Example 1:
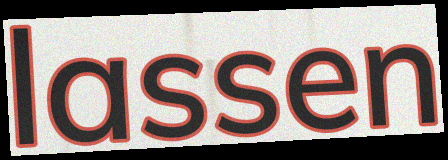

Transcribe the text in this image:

lassen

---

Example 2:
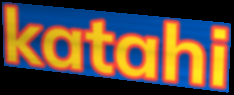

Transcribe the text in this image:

katahi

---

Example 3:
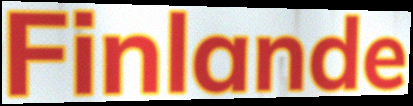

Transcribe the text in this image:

Finlande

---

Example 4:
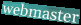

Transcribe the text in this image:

webmaster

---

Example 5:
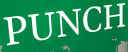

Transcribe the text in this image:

PUNCH